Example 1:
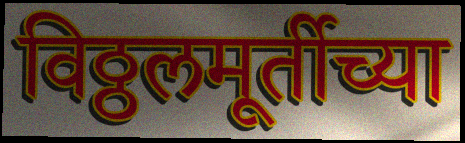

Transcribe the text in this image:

विठ्ठलमूर्तीच्या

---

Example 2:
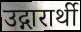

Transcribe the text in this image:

उद्गारार्थी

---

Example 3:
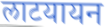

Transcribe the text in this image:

लाटयायन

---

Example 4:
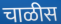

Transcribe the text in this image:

चाळीस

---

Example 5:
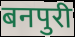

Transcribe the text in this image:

बनपुरी